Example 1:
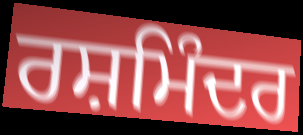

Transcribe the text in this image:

ਰਸ਼ਮਿੰਦਰ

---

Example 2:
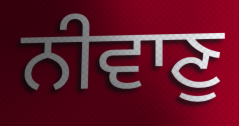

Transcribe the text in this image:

ਨੀਵਾਣੁ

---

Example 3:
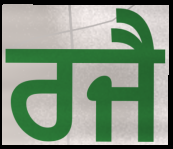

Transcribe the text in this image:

ਰਜੈ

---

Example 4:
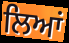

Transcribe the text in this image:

ਲਿਆਂ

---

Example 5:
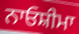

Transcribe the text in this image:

ਨਾਓਸ਼ੀਮਾ